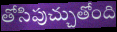
తోసిపుచ్చుతోంది